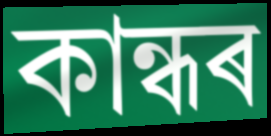
কান্ধৰ